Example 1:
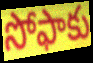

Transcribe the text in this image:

సోఫాకు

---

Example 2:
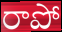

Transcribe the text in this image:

రాపో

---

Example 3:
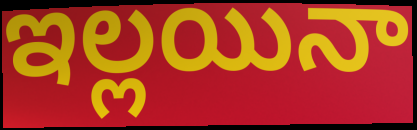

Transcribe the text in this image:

ఇల్లయినా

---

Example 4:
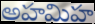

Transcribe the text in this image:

అహమిహ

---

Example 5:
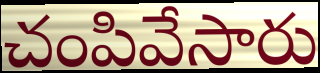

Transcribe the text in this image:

చంపివేసారు